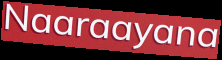
Naaraayana